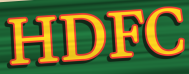
HDFC